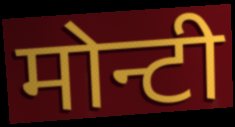
मोन्टी